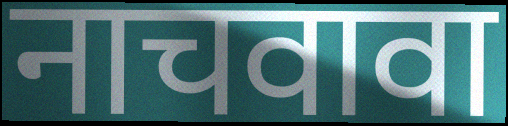
नाचवावा